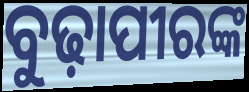
ବୁଢ଼ାପୀରଙ୍କ